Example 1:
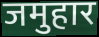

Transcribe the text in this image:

जमुहार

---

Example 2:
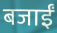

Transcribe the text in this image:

बजाईं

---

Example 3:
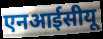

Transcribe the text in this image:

एनआईसीयू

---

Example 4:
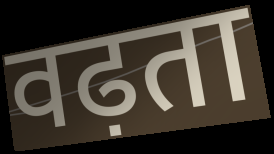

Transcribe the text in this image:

वढ़ता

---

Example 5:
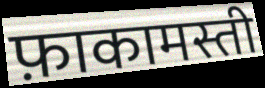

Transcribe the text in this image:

फ़ाकामस्ती